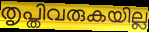
തൃപ്തിവരുകയില്ല